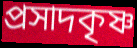
প্রসাদকৃষ্ণ